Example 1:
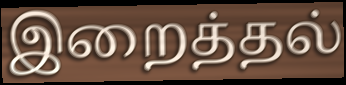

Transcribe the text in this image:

இறைத்தல்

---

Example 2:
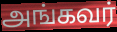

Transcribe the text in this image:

அங்கவர்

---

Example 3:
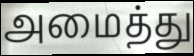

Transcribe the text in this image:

அமைத்து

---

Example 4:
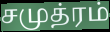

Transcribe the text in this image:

சமுத்ரம்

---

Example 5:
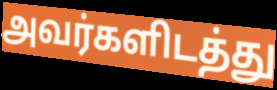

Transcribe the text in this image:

அவர்களிடத்து